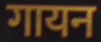
गायन